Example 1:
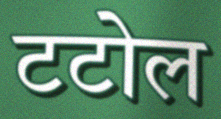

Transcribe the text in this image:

टटोल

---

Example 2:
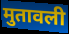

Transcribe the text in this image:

मुतावली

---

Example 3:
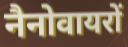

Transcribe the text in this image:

नैनोवायरों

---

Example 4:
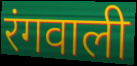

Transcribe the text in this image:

रंगवाली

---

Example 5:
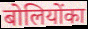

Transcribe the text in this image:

बोलियोंका